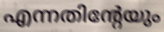
എന്നതിന്റേയും